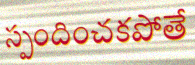
స్పందించకపోతే